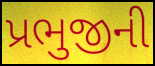
પ્રભુજીની